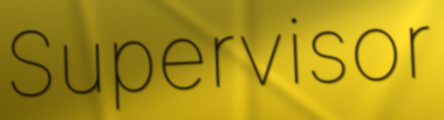
Supervisor